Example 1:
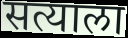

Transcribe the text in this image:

सत्याला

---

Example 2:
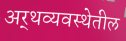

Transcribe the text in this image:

अर्थव्यवस्थेतील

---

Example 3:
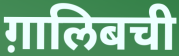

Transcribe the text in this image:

ग़ालिबची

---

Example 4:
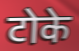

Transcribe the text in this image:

टोके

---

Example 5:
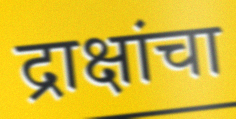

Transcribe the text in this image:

द्राक्षांचा